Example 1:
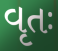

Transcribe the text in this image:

વૃતઃ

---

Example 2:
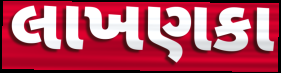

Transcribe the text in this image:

લાખણકા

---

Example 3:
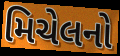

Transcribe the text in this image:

મિચેલનો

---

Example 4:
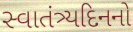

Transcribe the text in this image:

સ્વાતંત્ર્યદિનનો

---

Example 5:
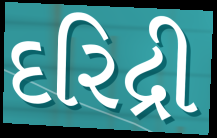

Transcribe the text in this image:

દરિદ્રી